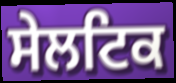
ਸੇਲਟਿਕ